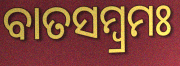
ବାତସମ୍ବ୍ରମଃ